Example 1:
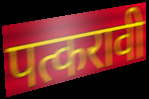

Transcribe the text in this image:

पत्करावी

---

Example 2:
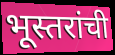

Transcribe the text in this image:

भूस्तरांची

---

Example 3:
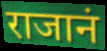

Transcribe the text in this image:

राजानं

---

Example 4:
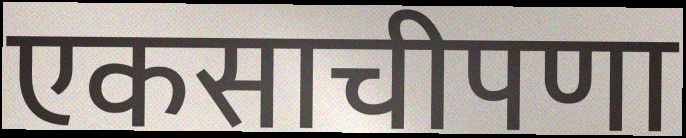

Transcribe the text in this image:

एकसाचीपणा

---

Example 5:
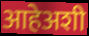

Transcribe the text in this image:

आहेअशी